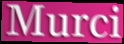
Murci